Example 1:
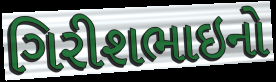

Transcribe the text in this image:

ગિરીશભાઇનો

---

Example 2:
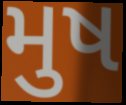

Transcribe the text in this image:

મુષ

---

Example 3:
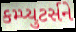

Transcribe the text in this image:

કમ્પ્યુટર્સને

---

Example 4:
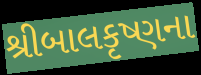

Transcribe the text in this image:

શ્રીબાલકૃષ્ણના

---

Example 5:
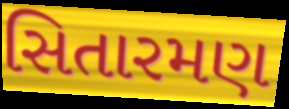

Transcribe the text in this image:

સિતારમણ